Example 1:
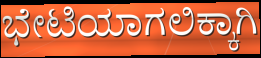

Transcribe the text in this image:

ಭೇಟಿಯಾಗಲಿಕ್ಕಾಗಿ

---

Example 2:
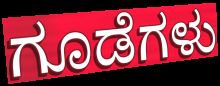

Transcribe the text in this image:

ಗೂಡೆಗಳು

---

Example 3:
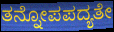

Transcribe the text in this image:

ತನ್ನೋಪಪದ್ಯತೇ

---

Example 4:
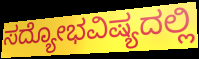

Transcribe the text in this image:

ಸದ್ಯೋಭವಿಷ್ಯದಲ್ಲಿ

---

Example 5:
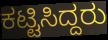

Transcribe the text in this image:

ಕಟ್ಟಿಸಿದ್ದರು